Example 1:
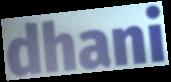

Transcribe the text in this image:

dhani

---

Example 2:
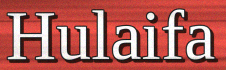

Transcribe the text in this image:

Hulaifa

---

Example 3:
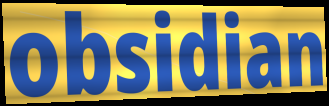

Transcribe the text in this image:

obsidian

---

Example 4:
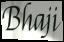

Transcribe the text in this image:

Bhaji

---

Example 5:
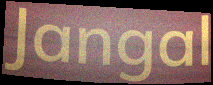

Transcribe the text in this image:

Jangal